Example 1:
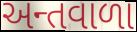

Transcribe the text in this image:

અન્તવાળા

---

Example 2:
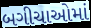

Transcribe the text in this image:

બગીચાઓમાં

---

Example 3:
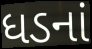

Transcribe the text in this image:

ધડનાં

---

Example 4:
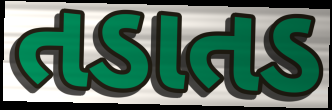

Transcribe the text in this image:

તડાતડ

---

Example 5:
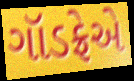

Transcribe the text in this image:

ગૉડફ્રેએ